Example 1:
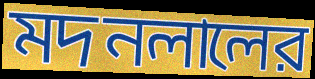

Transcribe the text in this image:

মদনলালের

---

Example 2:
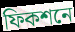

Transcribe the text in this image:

ফিকশনে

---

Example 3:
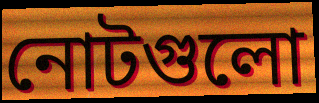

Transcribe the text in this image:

নোটগুলো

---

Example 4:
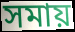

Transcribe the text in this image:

সমায়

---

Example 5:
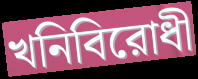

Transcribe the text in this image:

খনিবিরোধী